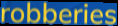
robberies